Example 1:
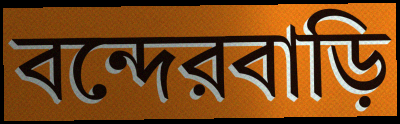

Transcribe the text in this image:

বন্দেরবাড়ি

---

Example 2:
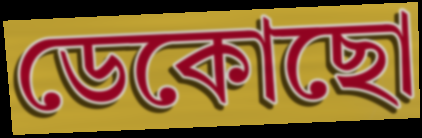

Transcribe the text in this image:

ডেকোছো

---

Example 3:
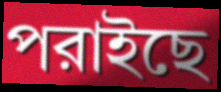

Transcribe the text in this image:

পরাইছে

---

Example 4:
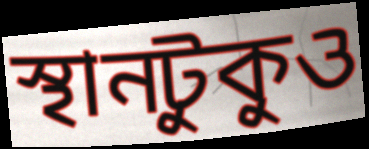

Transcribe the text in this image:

স্থানটুকুও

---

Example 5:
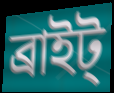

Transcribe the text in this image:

ব্রাইট্